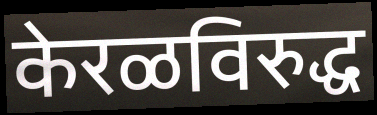
केरळविरुद्ध